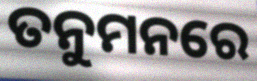
ତନୁମନରେ